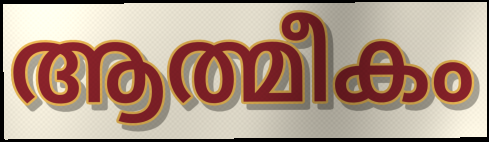
ആത്മീകം